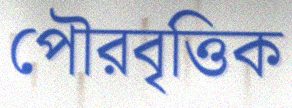
পৌরবৃত্তিক